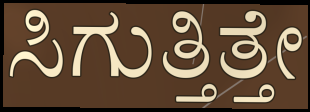
ಸಿಗುತ್ತಿತ್ತೇ